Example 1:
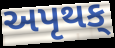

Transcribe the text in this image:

અપૃથક્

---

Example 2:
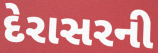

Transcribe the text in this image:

દેરાસરની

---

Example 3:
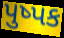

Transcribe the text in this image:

પુષ્પક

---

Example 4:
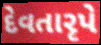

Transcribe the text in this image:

દેવતારૃપે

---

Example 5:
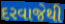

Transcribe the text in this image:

દરવાજેથી